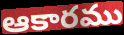
ఆకారము